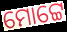
ମୋଟ୍ଟେ